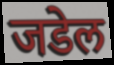
जडेल